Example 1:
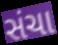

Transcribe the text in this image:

સંચા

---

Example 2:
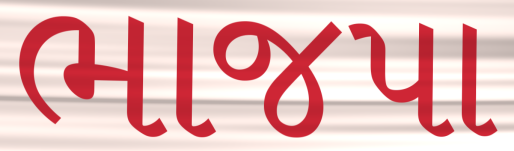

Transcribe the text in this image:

ભાજપા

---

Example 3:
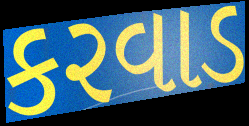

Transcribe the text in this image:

કરવાડ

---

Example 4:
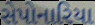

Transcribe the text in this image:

સેપોનારિયા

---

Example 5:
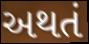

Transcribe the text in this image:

અથતં